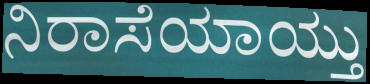
ನಿರಾಸೆಯಾಯ್ತು